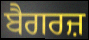
ਬੈਗਰਜ਼